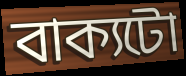
বাক্যটো